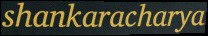
shankaracharya